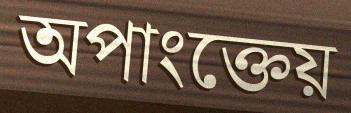
অপাংক্তেয়